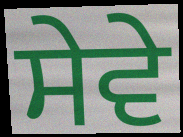
ਸੇਵੇ